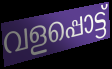
വളപ്പൊട്ട്